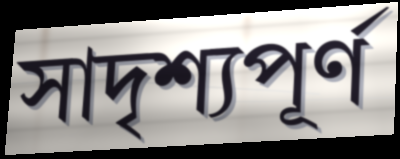
সাদৃশ্যপূৰ্ণ